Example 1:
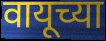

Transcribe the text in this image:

वायूच्या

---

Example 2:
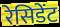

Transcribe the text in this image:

रेसिडेंट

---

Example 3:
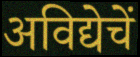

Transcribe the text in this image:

अविद्येचें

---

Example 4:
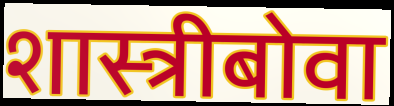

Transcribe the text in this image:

शास्त्रीबोवा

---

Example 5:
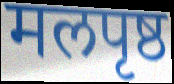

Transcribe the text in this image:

मलपृष्ठ